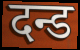
दन्ड